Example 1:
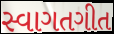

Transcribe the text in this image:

સ્વાગતગીત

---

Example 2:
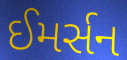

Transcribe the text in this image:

ઈમર્સન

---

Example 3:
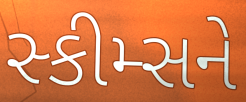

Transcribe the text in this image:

સ્કીમ્સને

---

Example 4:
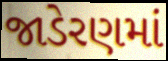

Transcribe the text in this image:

જાડેરણમાં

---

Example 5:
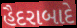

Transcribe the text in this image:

હૈદરાબાદે